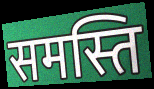
समस्ति